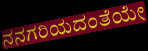
ನನಗರಿಯದಂತೆಯೇ